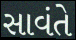
સાવંતે